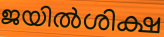
ജയിൽശിക്ഷ